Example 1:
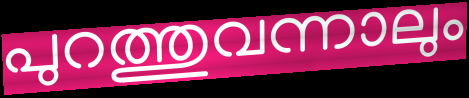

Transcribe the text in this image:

പുറത്തുവന്നാലും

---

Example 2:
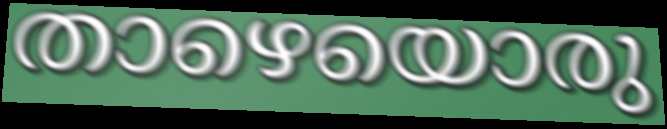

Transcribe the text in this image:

താഴെയൊരു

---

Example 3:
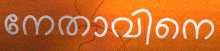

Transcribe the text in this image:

നേതാവിനെ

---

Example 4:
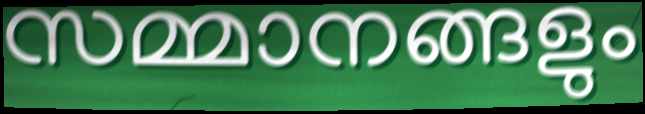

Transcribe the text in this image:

സമ്മാനങ്ങളും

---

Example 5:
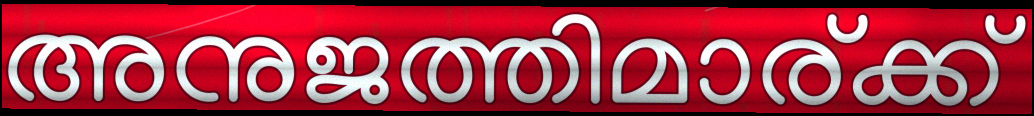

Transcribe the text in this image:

അനുജത്തിമാര്ക്ക്